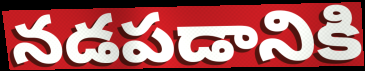
నడపడానికి